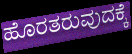
ಹೊರತರುವುದಕ್ಕೆ